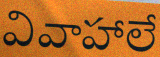
వివాహాలే